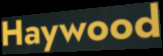
Haywood